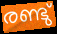
രണ്ടു്